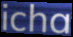
icha